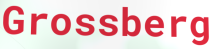
Grossberg